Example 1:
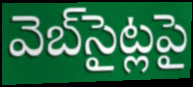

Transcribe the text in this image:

వెబ్‌సైట్లపై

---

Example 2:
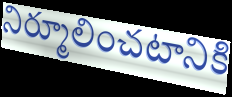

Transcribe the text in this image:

నిర్మూలించటానికి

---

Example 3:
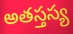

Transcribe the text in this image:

అతస్తస్య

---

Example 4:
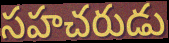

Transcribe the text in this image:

సహచరుడు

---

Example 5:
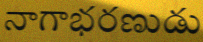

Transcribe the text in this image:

నాగాభరణుడు